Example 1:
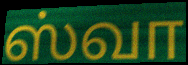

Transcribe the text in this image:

ஸ்வா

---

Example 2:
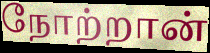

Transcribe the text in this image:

நோற்றான்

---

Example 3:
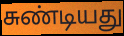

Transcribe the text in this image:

சுண்டியது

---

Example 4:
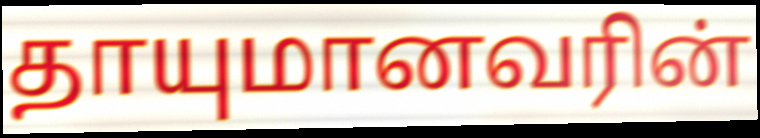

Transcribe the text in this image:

தாயுமானவரின்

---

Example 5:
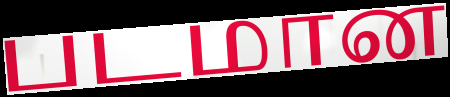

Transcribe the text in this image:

படமான